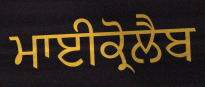
ਮਾਈਕ੍ਰੋਲੈਬ